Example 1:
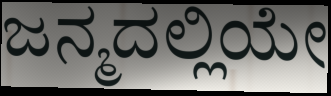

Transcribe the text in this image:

ಜನ್ಮದಲ್ಲಿಯೇ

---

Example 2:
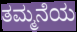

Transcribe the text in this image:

ತಮ್ಮನೆಯ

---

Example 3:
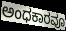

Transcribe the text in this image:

ಅಂಧಕಾರವೂ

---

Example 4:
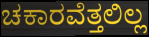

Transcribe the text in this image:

ಚಕಾರವೆತ್ತಲಿಲ್ಲ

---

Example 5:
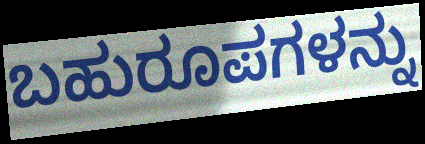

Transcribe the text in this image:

ಬಹುರೂಪಗಳನ್ನು